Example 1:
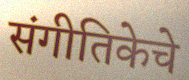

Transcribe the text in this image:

संगीतिकेचे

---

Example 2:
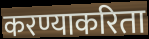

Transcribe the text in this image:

करण्याकरिता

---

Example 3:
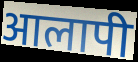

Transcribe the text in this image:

आलापी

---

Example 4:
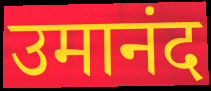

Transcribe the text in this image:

उमानंद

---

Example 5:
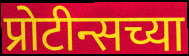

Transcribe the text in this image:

प्रोटीन्सच्या